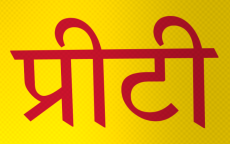
प्रीटी